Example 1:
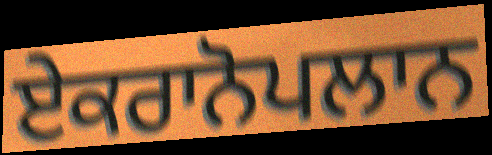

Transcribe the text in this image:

ਏਕਰਾਨੋਪਲਾਨ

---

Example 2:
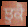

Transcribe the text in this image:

ਝੁਕੈ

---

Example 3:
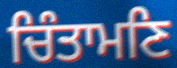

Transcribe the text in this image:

ਚਿੰਤਾਮਣਿ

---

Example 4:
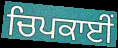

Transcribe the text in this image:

ਚਿਪਕਾਈਂ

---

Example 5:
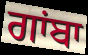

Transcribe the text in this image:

ਗਾਂਬਾ